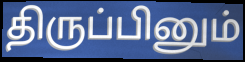
திருப்பினும்